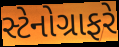
સ્ટેનોગ્રાફરે